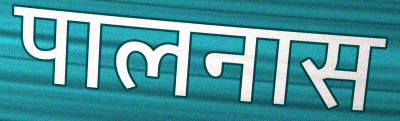
पालनास